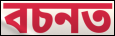
বচনত